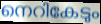
നെറികേടും